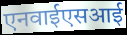
एनवाईएसआई